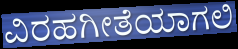
ವಿರಹಗೀತೆಯಾಗಲಿ